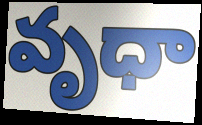
వృధా